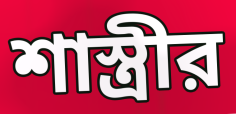
শাস্ত্রীর